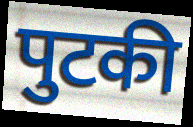
पुटकी